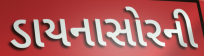
ડાયનાસોરની